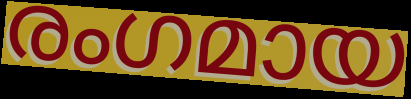
രംഗമായ